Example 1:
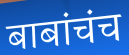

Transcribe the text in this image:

बाबांचंच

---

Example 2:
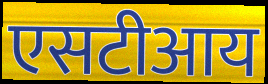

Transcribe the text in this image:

एसटीआय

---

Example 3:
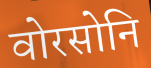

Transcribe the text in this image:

वोरसोनि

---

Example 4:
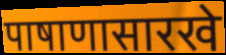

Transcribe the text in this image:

पाषाणासारखे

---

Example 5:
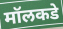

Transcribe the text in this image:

मॉलकडे